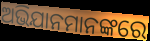
ଅଭିଯାନମାନଙ୍କରେ